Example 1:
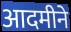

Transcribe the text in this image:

आदमीने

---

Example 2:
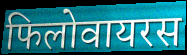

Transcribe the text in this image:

फिलोवायरस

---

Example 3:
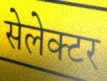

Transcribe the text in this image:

सेलेक्टर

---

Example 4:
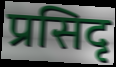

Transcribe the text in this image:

प्रसिदृ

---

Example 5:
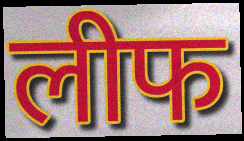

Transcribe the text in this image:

लीफ